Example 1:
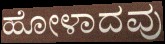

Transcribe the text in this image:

ಹೋಳಾದವು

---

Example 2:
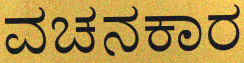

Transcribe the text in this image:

ವಚನಕಾರ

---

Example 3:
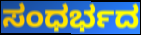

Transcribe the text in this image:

ಸಂಧರ್ಭದ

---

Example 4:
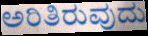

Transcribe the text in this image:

ಅರಿತಿರುವುದು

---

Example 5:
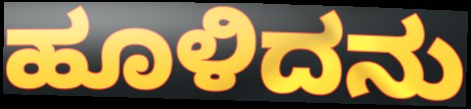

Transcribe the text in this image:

ಹೂಳಿದನು